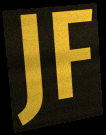
JF